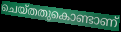
ചെയ്തതുകൊണ്ടാണ്